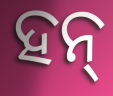
ହନ୍